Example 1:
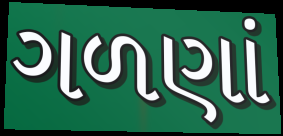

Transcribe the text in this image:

ગળણાં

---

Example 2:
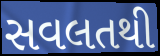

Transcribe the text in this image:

સવલતથી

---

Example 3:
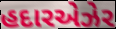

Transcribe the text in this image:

હદારએઝેર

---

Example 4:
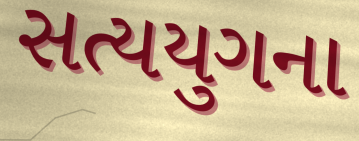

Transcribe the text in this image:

સત્યયુગના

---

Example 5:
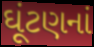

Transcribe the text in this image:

ઘૂંટણનાં